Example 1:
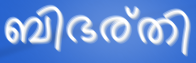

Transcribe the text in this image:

ബിഭര്തി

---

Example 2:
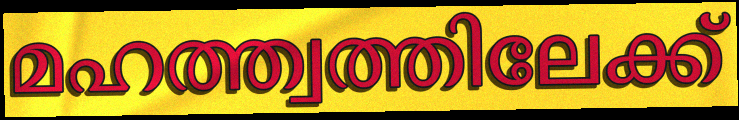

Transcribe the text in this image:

മഹത്ത്വത്തിലേക്ക്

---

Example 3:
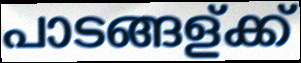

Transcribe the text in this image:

പാടങ്ങള്ക്ക്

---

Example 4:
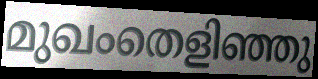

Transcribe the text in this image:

മുഖംതെളിഞ്ഞു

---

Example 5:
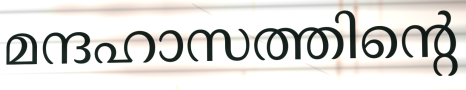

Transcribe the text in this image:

മന്ദഹാസത്തിന്റെ